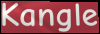
Kangle